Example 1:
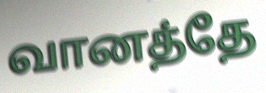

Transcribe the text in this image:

வானத்தே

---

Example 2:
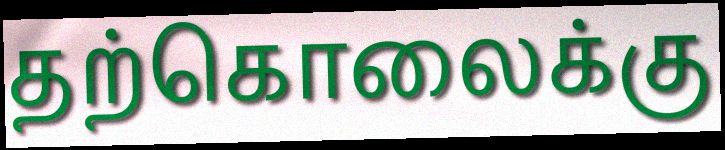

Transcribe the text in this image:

தற்கொலைக்கு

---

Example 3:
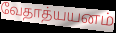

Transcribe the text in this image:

வேதாத்யயனம்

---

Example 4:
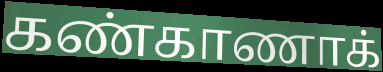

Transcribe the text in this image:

கண்காணாக்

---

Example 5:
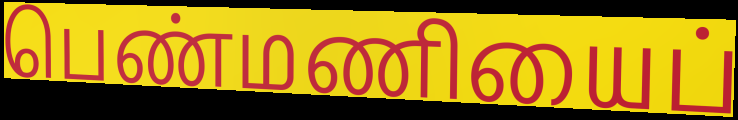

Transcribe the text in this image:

பெண்மணியைப்